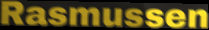
Rasmussen